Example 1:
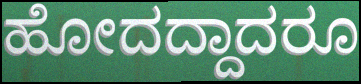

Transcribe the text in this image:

ಹೋದದ್ದಾದರೂ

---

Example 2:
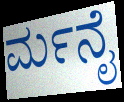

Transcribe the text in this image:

ರ್ಮನೈ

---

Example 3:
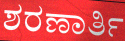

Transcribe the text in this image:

ಶರಣಾರ್ತಿ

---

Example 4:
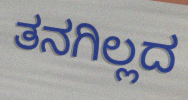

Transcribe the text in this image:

ತನಗಿಲ್ಲದ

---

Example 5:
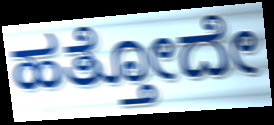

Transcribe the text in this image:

ಹತ್ತೋದೇ